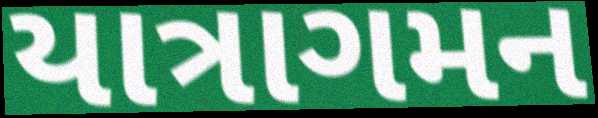
યાત્રાગમન